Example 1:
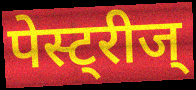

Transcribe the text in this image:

पेस्ट्रीज्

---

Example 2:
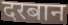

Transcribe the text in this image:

दरबान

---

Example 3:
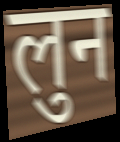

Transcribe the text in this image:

लुन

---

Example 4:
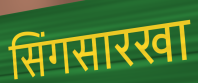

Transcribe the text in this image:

सिंगसारखा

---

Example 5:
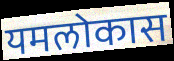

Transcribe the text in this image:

यमलोकास